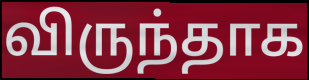
விருந்தாக